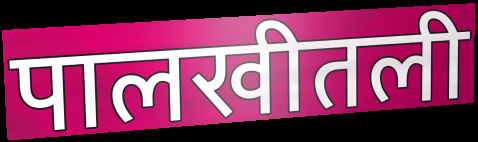
पालखीतली